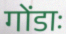
गोंडाः